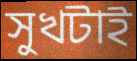
সুখটাই